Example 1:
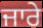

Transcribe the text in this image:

ਜਾਰੇ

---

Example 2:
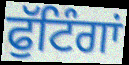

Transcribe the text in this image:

ਫੁੱਟਿੰਗਾਂ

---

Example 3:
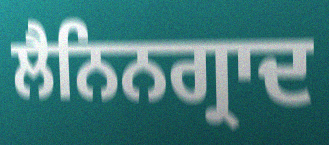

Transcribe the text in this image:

ਲੈਨਿਨਗ੍ਰਾਦ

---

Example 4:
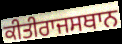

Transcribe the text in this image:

ਕੀਤੀਰਾਜਸਥਾਨ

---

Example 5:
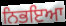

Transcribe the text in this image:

ਨਿਭਇਆ